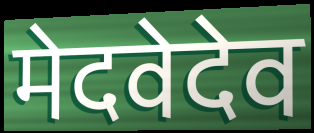
मेदवेदेव